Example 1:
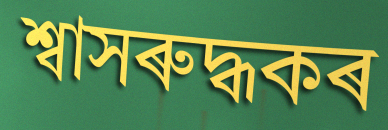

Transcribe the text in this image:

শ্বাসৰুদ্ধকৰ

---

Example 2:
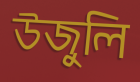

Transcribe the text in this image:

উজুলি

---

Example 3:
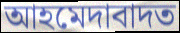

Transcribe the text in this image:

আহমেদাবাদত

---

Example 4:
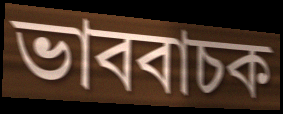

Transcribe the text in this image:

ভাববাচক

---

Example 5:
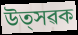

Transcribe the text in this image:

উত্সৱক